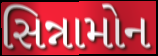
સિન્નામોન